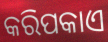
କରିପକାଏ